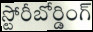
స్టోరీబోర్డింగ్